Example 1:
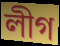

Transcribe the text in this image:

লীগ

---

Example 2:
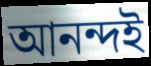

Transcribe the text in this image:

আনন্দই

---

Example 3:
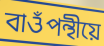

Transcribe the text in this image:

বাওঁপন্থীয়ে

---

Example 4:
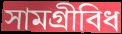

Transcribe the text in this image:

সামগ্ৰীবিধ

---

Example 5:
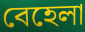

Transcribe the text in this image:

বেহেলা